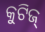
କୁଟିଜ୍